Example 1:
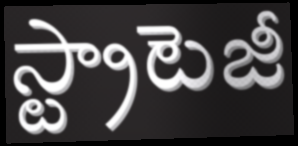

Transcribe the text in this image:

స్ట్రాటెజీ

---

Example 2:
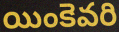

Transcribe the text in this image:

యింకెవరి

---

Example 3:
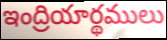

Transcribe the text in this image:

ఇంద్రియార్థములు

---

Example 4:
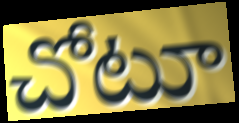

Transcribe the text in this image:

చోటూ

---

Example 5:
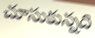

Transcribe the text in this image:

చూసుకున్నది